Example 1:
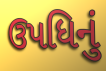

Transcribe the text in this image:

ઉપધિનું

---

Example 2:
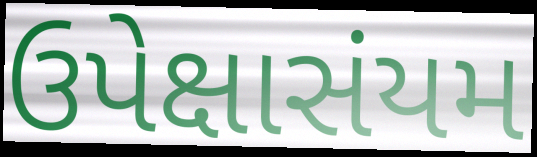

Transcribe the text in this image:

ઉપેક્ષાસંયમ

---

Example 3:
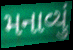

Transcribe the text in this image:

મનાવ્યું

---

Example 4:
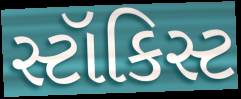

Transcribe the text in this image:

સ્ટૉકિસ્ટ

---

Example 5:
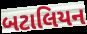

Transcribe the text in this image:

બટાલિયન